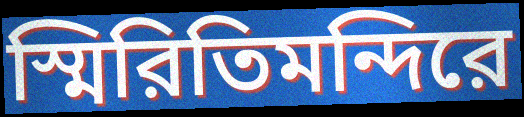
স্মিরিতিমন্দিরে